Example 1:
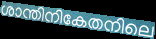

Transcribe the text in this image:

ശാന്തിനികേതനിലെ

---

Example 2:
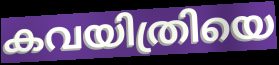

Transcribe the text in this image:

കവയിത്രിയെ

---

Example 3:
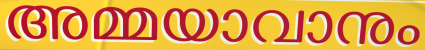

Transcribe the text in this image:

അമ്മയാവാനും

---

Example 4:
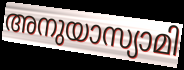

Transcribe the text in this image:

അനുയാസ്യാമി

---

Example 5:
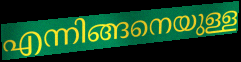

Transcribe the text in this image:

എന്നിങ്ങനെയുള്ള